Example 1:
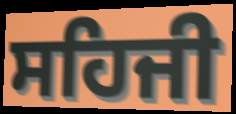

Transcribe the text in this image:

ਸਹਿਜੀ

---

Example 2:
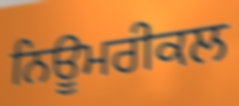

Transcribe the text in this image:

ਨਿਊਮਰੀਕਲ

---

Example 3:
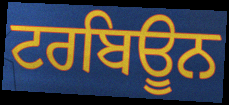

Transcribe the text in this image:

ਟਰਬਿਊਨ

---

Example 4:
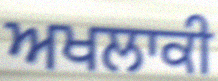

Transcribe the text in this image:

ਅਖਲਾਕੀ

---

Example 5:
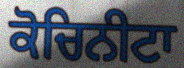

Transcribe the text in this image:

ਕੋਚਿਨੀਟਾ